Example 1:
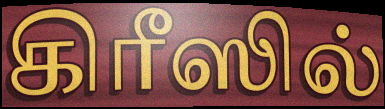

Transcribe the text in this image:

கிரீஸில்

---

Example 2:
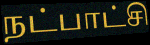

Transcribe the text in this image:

நட்பாட்சி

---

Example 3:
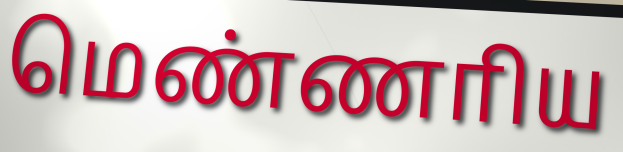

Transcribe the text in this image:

மெண்ணரிய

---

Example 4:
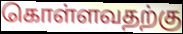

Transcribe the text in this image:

கொள்ளவதற்கு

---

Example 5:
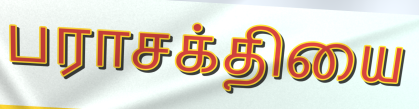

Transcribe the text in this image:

பராசக்தியை